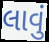
લાવું